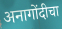
अनागोंदीचा